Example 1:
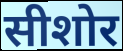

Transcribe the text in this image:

सीशोर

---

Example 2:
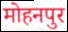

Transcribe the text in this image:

मोहनपुर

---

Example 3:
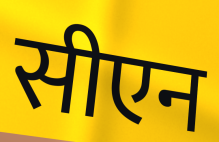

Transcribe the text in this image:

सीएन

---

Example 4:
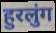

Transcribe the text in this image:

हुरलुंग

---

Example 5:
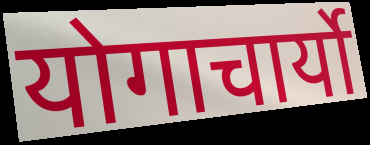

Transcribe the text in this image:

योगाचार्यो